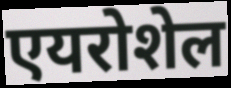
एयरोशेल